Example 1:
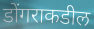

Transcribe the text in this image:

डोंगराकडील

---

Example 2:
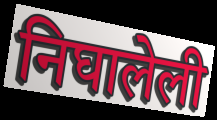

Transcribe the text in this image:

निघालेली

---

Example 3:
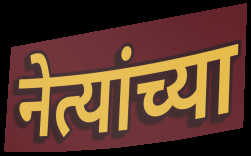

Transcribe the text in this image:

नेत्यांच्या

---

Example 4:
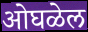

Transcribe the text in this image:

ओघळेल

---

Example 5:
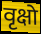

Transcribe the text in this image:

वृक्षो